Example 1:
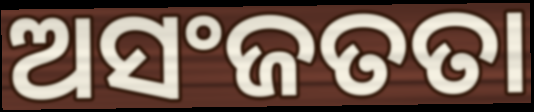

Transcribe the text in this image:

ଅସଂଜତତା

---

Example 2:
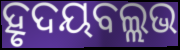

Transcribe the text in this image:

ହୃଦୟବଲ୍ଲଭ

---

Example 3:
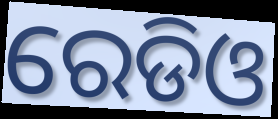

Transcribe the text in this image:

ରେଡିଓ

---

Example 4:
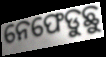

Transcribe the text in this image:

ନେଫେଡୁଛୁ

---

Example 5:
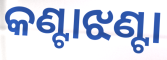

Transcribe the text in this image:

କଣ୍ଟାଝଣ୍ଟା